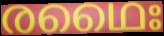
രഥൈഃ